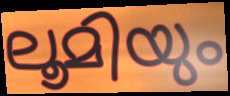
ലൂമിയും